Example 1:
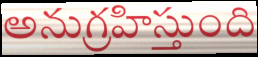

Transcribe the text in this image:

అనుగ్రహిస్తుంది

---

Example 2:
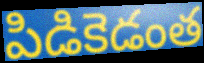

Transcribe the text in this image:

పిడికెడంత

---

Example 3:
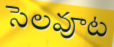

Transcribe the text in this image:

సెలవూట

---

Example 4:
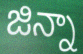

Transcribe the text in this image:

జిన్నా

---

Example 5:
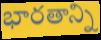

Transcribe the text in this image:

భారతాన్ని